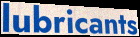
lubricants